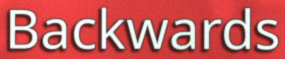
Backwards